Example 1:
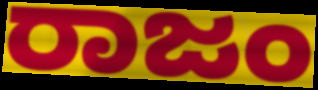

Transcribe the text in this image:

ರಾಜಂ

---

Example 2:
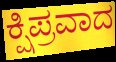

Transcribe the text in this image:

ಕ್ಷಿಪ್ರವಾದ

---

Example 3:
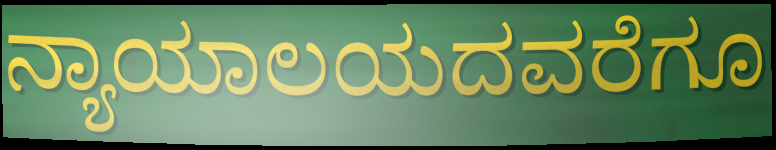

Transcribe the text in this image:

ನ್ಯಾಯಾಲಯದವರೆಗೂ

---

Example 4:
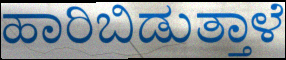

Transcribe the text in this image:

ಹಾರಿಬಿಡುತ್ತಾಳೆ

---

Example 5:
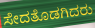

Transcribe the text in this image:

ಸೇದತೊಡಗಿದರು